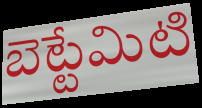
బెట్టేమిటి